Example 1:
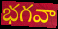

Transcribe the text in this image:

భగవా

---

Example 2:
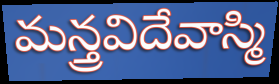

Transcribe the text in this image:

మన్త్రవిదేవాస్మి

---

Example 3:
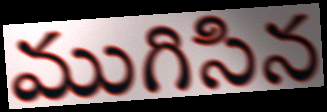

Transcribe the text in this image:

ముగిసిన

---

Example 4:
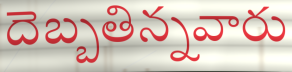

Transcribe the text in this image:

దెబ్బతిన్నవారు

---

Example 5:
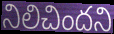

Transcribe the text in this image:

నిలిచిందని